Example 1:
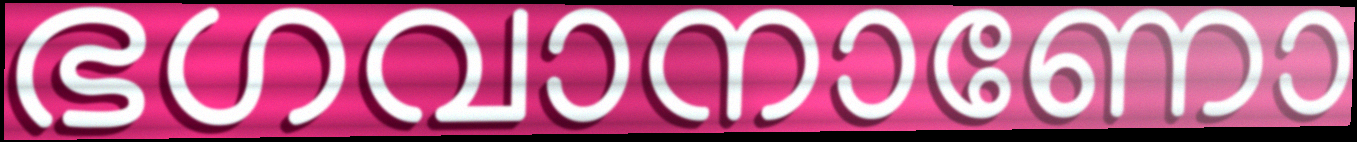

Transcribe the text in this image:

ഭഗവാനാണോ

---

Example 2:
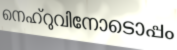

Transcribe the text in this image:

നെഹ്റുവിനോടൊപ്പം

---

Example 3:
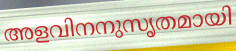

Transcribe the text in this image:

അളവിനനുസൃതമായി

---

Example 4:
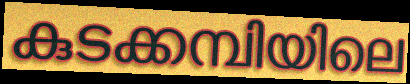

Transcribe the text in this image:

കുടക്കമ്പിയിലെ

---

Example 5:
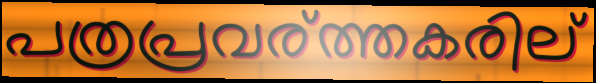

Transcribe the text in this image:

പത്രപ്രവര്ത്തകരില്